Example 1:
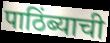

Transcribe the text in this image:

पाठिंब्याची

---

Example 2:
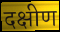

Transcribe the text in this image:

दक्षीण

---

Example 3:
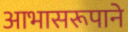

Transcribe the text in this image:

आभासरूपाने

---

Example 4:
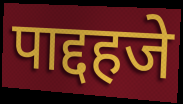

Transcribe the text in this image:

पाद्दहजे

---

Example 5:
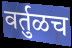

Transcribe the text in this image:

वर्तुळच